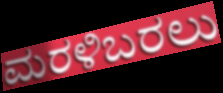
ಮರಳಿಬರಲು